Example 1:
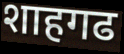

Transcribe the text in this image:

शाहगढ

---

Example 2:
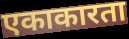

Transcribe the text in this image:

एकाकारता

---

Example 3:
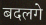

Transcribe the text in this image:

बदलगे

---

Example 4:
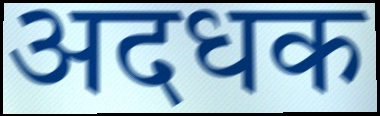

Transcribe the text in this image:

अदधक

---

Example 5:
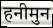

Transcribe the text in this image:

हनीमुन